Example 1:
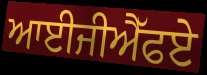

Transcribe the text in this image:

ਆਈਜੀਐੱਫਏ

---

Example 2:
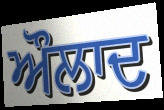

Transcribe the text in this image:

ਔਲਾਦ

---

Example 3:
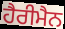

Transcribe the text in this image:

ਹੈਰੀਮੈਨ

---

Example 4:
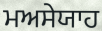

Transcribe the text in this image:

ਮਅਸੇਯਾਹ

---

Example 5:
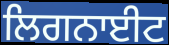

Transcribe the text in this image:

ਲਿਗਨਾਈਟ